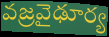
వజ్రవైఢూర్య